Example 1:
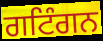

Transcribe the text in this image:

ਗਟਿੰਗਨ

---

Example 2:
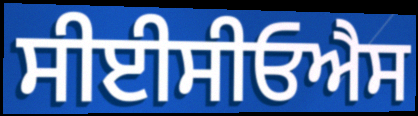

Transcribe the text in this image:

ਸੀਈਸੀਓਐਸ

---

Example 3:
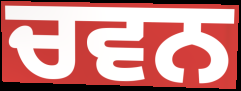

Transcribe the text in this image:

ਚਵਨ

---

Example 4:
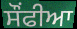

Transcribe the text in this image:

ਸੌਂਫੀਆ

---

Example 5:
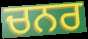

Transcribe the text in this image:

ਚਨਰ